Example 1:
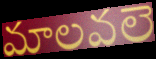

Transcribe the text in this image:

మాలవలె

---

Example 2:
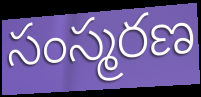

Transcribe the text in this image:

సంస్మరణ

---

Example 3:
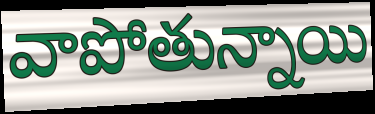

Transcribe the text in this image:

వాపోతున్నాయి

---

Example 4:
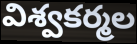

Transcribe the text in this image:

విశ్వకర్మల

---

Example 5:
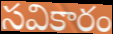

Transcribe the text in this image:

సవికారం